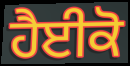
ਹੈਈਕੋ